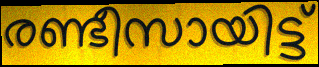
രണ്ടീസായിട്ട്